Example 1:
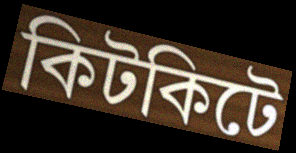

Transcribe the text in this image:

কিটকিটে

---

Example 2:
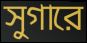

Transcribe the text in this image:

সুগারে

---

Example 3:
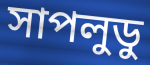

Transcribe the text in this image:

সাপলুডু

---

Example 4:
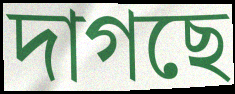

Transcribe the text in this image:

দাগছে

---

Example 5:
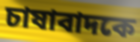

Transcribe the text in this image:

চাষাবাদকে